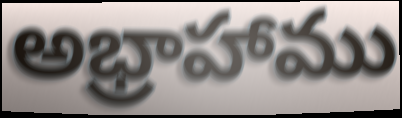
అభ్రాహాము